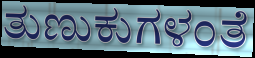
ತುಣುಕುಗಳಂತೆ